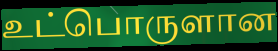
உட்பொருளான